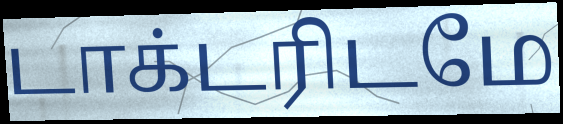
டாக்டரிடமே